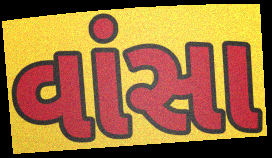
વાંસા